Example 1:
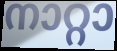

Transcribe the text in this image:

നാറ്റാ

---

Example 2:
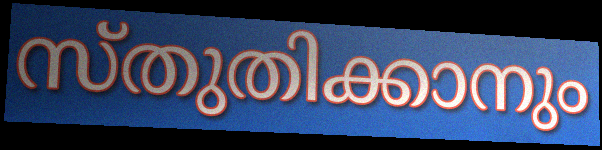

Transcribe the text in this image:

സ്തുതിക്കാനും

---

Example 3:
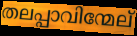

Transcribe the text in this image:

തലപ്പാവിന്മേല്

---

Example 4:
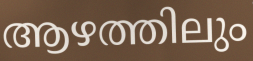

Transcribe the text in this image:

ആഴത്തിലും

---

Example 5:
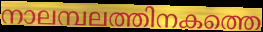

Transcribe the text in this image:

നാലമ്പലത്തിനകത്തെ